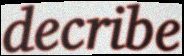
decribe